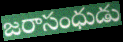
జరాసంధుడు